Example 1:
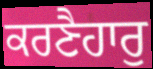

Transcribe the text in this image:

ਕਰਣੈਹਾਰੁ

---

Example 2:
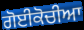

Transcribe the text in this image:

ਗੋਈਕੋਚੀਆ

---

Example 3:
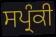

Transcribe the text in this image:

ਸਪ੍ਰੰਕੀ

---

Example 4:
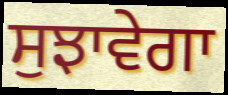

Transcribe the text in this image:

ਸੁਝਾਵੇਗਾ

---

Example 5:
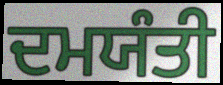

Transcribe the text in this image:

ਦਮਯੰਤੀ